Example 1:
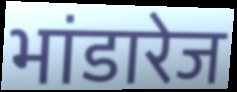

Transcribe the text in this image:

भांडारेज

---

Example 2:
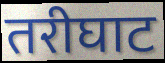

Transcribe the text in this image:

तरीघाट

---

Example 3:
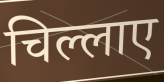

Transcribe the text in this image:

चिल्लाए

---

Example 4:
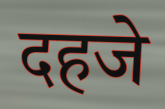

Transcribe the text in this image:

दहजे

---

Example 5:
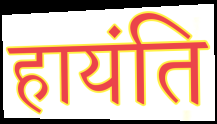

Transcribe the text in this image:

हायंति